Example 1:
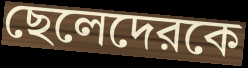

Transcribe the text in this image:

ছেলেদেরকে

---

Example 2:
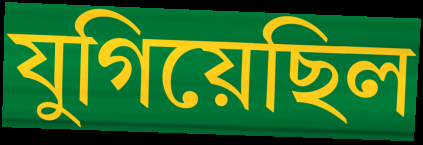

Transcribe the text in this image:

যুগিয়েছিল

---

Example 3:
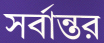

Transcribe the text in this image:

সর্বান্তর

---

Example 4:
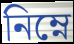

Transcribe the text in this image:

নিম্নে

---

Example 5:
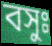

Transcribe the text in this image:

বসুঃ